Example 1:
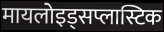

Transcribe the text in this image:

मायलोइड्सप्लास्टिक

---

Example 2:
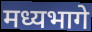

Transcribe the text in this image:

मध्यभागे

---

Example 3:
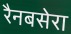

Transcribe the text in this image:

रैनबसेरा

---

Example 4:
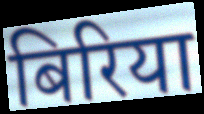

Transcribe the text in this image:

बिरिया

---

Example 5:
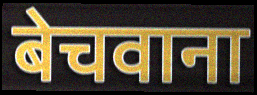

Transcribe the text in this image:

बेचवाना